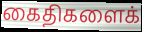
கைதிகளைக்